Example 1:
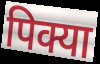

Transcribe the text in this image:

पिक्या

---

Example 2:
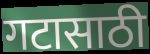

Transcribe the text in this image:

गटासाठी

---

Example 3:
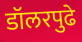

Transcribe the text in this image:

डॉलरपुढे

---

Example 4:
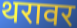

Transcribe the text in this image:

थरावर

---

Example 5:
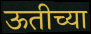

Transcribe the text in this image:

ऊतीच्या